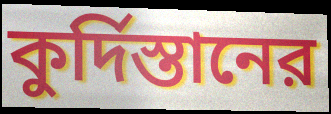
কুর্দিস্তানের